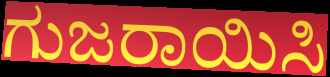
ಗುಜರಾಯಿಸಿ